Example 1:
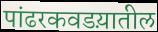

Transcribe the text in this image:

पांढरकवडय़ातील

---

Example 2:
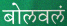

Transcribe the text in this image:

बोलवलं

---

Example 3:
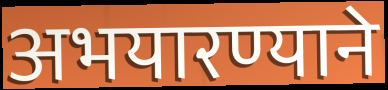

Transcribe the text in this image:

अभयारण्याने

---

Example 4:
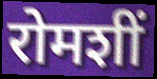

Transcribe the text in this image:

रोमशीं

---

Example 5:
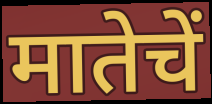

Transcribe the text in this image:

मातेचें